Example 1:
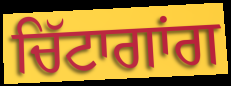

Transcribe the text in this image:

ਚਿੱਟਾਗਾਂਗ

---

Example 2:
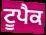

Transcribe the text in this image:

ਟੂਪੈਕ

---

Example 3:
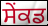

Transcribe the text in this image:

ਸੇਂਕਡ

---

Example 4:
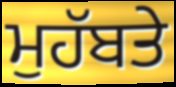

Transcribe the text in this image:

ਮੁਹੱਬਤੇ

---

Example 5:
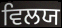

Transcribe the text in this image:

ਵਿਲਯ